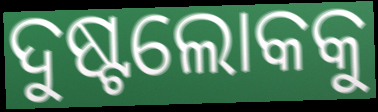
ଦୁଷ୍ଟଲୋକକୁ